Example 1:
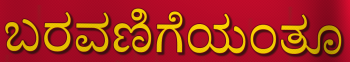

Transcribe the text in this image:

ಬರವಣಿಗೆಯಂತೂ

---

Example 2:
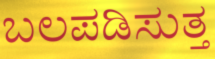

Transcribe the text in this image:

ಬಲಪಡಿಸುತ್ತ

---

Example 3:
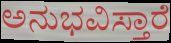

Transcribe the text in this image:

ಅನುಭವಿಸ್ತಾರೆ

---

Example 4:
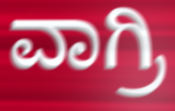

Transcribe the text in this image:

ವಾಗ್ರಿ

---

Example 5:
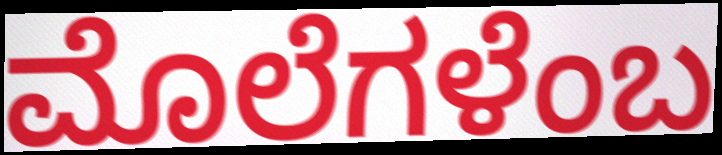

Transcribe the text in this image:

ಮೊಲೆಗಳೆಂಬ